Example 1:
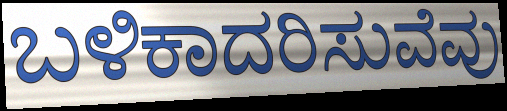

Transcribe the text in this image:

ಬಳಿಕಾದರಿಸುವೆವು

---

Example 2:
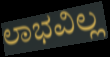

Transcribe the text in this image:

ಲಾಭವಿಲ್ಲ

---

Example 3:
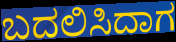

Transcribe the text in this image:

ಬದಲಿಸಿದಾಗ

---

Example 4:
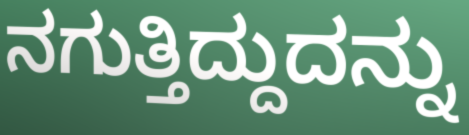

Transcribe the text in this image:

ನಗುತ್ತಿದ್ದುದನ್ನು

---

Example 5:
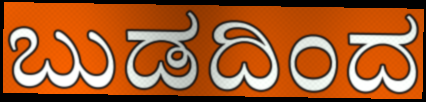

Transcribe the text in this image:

ಬುಡದಿಂದ